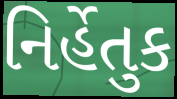
નિર્હેતુક